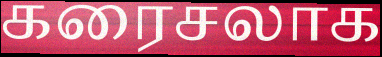
கரைசலாக